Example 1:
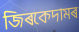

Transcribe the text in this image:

জিৰকেদামৰ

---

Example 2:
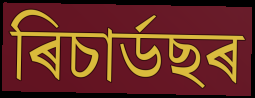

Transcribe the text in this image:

ৰিচাৰ্ডছৰ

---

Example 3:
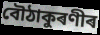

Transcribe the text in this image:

বৌঠাকুৰণীৰ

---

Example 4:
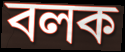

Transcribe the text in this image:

বলক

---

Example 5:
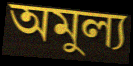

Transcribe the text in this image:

অমুল্য